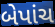
બેપાંચ